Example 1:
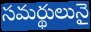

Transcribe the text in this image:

సమర్థులునై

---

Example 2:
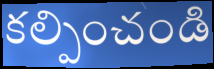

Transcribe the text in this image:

కల్పించండి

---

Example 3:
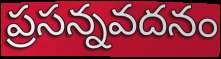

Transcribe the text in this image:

ప్రసన్నవదనం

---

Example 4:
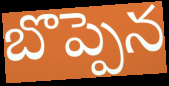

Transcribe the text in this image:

బొప్పెన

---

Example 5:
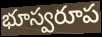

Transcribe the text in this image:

భూస్వరూప